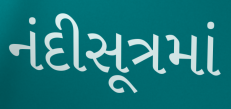
નંદીસૂત્રમાં